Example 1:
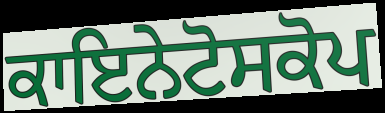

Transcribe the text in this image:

ਕਾਇਨੇਟੋਸਕੋਪ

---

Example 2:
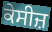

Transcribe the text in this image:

ਕੇਸੀਜ਼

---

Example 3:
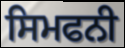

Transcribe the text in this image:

ਸਿਮਫਨੀ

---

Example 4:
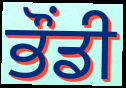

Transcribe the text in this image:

ਭੌਂਡੀ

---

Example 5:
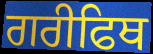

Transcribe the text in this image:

ਗਰੀਫਿਥ